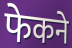
फेकने